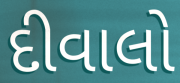
દીવાલો